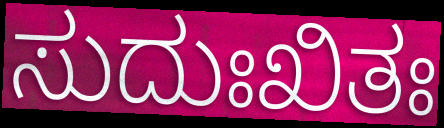
ಸುದುಃಖಿತಃ